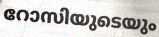
റോസിയുടെയും